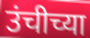
उंचीच्या